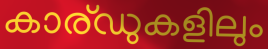
കാര്ഡുകളിലും